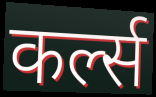
कर्ल्स